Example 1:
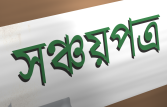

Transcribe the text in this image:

সঞ্চয়পত্র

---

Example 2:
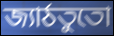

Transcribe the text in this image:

জ্যাঠতুতো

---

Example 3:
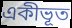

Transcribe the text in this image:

একীভূত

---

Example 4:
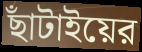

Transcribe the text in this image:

ছাঁটাইয়ের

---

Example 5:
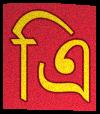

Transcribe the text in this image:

এি